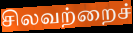
சிலவற்றைச்